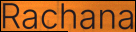
Rachana